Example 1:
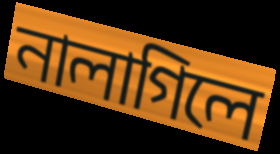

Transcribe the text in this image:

নালাগিলে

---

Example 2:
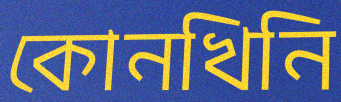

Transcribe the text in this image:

কোনখিনি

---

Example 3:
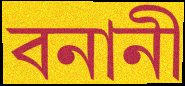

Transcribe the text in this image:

বনানী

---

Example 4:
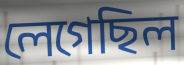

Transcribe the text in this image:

লেগেছিল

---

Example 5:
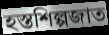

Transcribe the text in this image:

হস্তশিল্পজাত